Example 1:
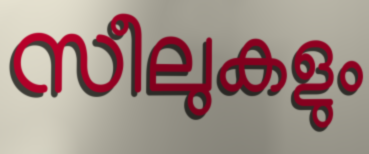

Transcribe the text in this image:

സീലുകളും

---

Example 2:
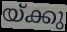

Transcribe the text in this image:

യ്ക്കു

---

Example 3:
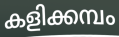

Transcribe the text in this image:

കളിക്കമ്പം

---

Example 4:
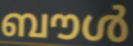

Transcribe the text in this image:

ബൗൾ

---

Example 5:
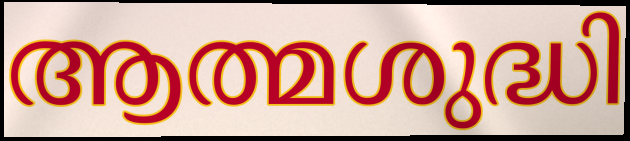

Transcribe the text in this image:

ആത്മശുദ്ധി